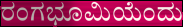
ರಂಗಭೂಮಿಯೆಂದು